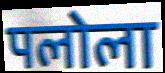
पलोला